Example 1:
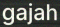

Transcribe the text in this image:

gajah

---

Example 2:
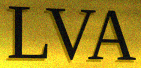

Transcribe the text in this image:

LVA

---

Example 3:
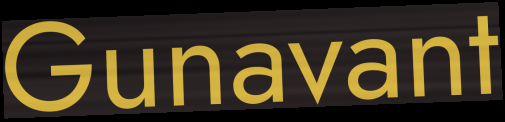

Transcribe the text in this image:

Gunavant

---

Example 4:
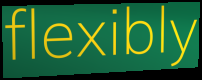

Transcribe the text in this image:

flexibly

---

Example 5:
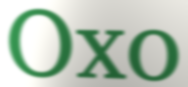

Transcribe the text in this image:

Oxo